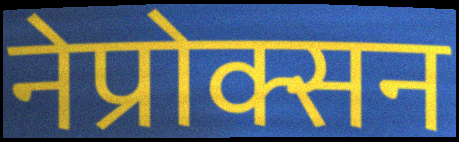
नेप्रोक्सन